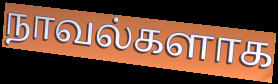
நாவல்களாக